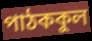
পাঠককুল